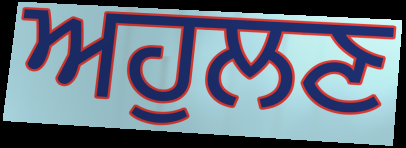
ਅਹੁਲਣ